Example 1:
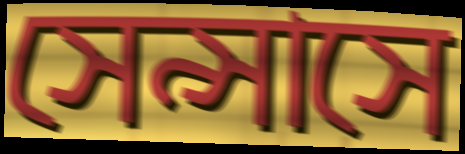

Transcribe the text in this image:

সেন্সাসে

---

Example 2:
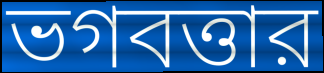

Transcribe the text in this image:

ভগবত্তার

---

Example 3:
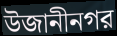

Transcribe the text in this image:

উজানীনগর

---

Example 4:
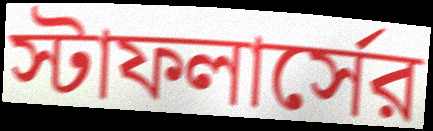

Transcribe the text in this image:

স্টাফলার্সের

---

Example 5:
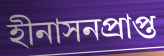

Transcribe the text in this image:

হীনাসনপ্রাপ্ত